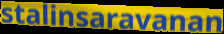
stalinsaravanan